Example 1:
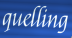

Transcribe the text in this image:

quelling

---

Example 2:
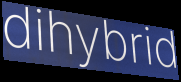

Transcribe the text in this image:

dihybrid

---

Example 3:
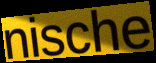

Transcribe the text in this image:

nische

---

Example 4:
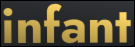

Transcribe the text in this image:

infant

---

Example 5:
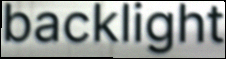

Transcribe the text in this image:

backlight